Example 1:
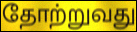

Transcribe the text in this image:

தோற்றுவது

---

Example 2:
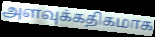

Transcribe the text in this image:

அளவுக்கதிகமாக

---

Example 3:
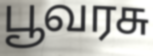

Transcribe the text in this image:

பூவரசு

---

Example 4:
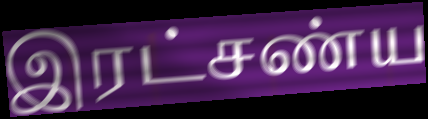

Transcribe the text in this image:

இரட்சண்ய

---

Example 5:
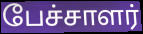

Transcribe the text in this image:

பேச்சாளர்